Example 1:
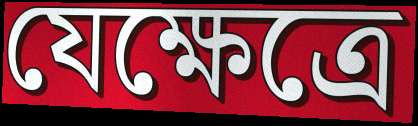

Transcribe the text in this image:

যেক্ষেত্রে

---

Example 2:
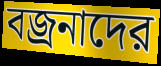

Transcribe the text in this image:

বজ্রনাদের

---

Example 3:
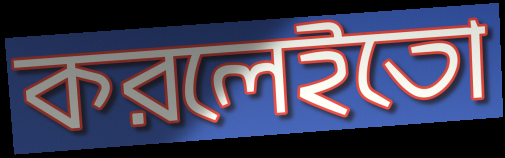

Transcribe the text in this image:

করলেইতো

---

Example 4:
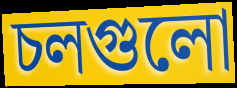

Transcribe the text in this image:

চলগুলো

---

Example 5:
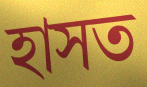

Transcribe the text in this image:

হাসত